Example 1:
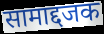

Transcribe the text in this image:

सामाद्दजक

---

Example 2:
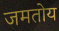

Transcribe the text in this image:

जमतोय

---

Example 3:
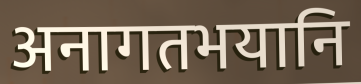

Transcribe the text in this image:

अनागतभयानि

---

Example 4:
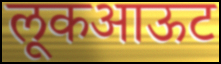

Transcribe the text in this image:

लूकआऊट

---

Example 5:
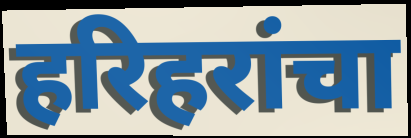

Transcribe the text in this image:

हरिहरांचा